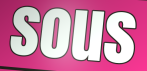
sous